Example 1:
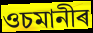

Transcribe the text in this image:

ওচমানীৰ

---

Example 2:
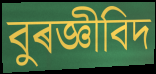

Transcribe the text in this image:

বুৰজ্ঞীবিদ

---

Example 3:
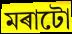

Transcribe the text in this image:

মৰাটো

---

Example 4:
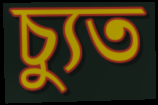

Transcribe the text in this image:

চ্যুত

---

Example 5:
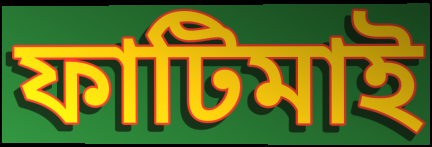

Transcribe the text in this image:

ফাটিমাই